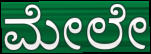
ಮೇಲೇ